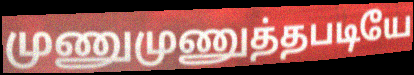
முணுமுணுத்தபடியே